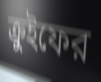
ক্রুইফের